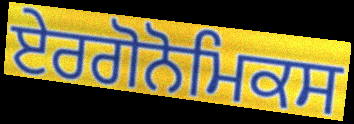
ਏਰਗੋਨੋਮਿਕਸ